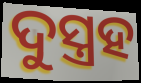
ଦୁସ୍ତ୍ରହ